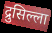
द्रुसिल्ला